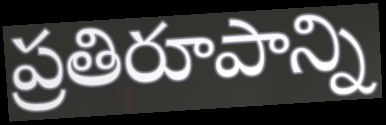
ప్రతిరూపాన్ని